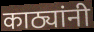
काठ्यांनी